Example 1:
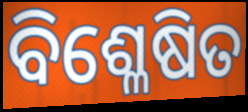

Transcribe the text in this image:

ବିଶ୍ଳେଷିତ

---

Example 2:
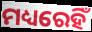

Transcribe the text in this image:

ମଧ୍ୟରେହିଁ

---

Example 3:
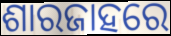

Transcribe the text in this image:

ଶାରଜାହରେ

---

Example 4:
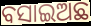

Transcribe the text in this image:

ବସାଇଅଛ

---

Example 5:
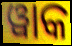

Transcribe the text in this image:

ୱାକ